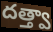
దత్త్వా